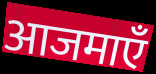
आजमाएँ